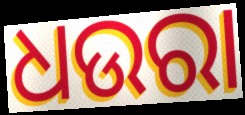
ଧଉରା